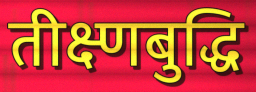
तीक्ष्णबुद्धि